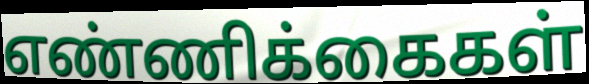
எண்ணிக்கைகள்